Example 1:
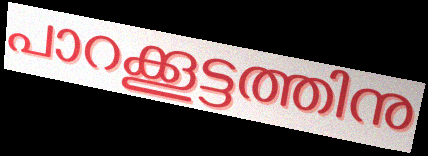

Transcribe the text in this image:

പാറക്കൂട്ടത്തിനു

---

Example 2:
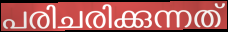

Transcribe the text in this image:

പരിചരിക്കുന്നത്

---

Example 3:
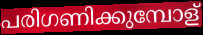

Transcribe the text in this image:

പരിഗണിക്കുമ്പോള്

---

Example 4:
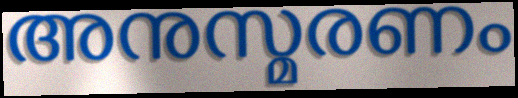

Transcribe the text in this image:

അനുസ്മരണം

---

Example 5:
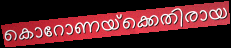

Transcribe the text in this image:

കൊറോണയ്‌ക്കെതിരായ